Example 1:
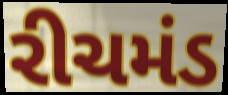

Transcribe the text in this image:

રીચમંડ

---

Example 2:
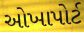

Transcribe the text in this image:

ઓખાપોર્ટ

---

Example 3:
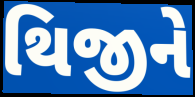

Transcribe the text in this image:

થિજીને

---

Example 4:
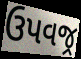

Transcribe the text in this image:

ઉપવજ્ર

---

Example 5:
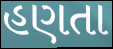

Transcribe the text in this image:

હણતા